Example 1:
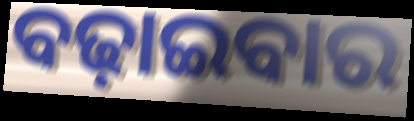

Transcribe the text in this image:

ବଢ଼ାଇବାର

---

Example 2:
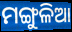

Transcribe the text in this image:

ମଙ୍ଗୁଳିଆ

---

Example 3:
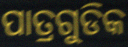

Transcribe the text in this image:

ପାତ୍ରଗୁଡିକ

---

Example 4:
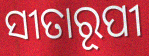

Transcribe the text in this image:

ସୀତାରୂପୀ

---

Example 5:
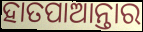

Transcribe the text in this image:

ହାତପାଆନ୍ତାର